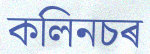
কলিনচৰ